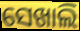
ସେଖାଲି